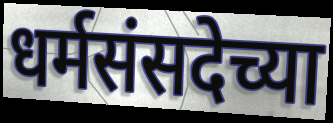
धर्मसंसदेच्या